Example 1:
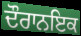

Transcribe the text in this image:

ਦੌਰਾਨਇਕ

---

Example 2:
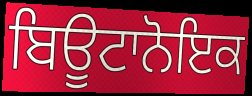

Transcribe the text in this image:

ਬਿਊਟਾਨੋਇਕ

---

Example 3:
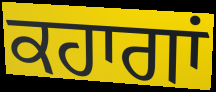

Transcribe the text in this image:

ਕਹਾਗਾਂ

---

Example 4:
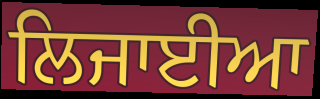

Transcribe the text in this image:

ਲਿਜਾਈਆ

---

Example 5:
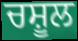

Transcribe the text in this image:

ਚਸ਼ੂਲ